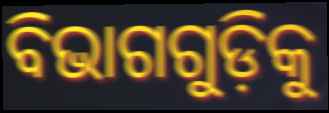
ବିଭାଗଗୁଡ଼ିକୁ